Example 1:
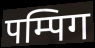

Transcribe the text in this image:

पम्पिग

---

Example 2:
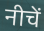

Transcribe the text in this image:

नीचें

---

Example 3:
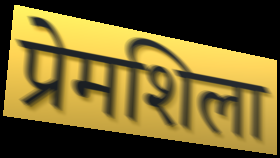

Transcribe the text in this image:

प्रेमशिला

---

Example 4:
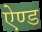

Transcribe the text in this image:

ऐण्ड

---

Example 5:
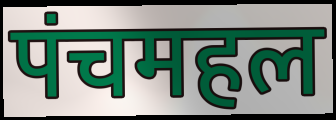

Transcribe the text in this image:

पंचमहल